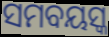
ସମବୟସ୍କ